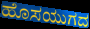
ಹೊಸಯುಗದ